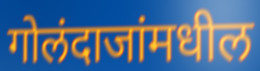
गोलंदाजांमधील